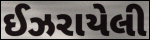
ઈઝરાયેલી